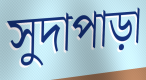
সুদাপাড়া